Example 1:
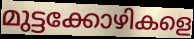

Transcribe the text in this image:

മുട്ടക്കോഴികളെ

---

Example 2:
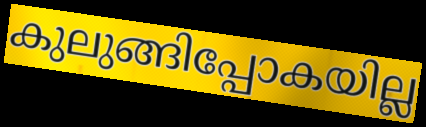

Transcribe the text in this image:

കുലുങ്ങിപ്പോകയില്ല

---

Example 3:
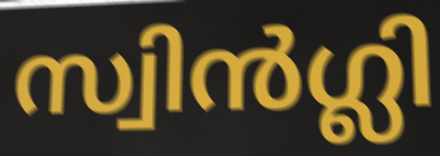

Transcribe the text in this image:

സ്വിൻഗ്ലി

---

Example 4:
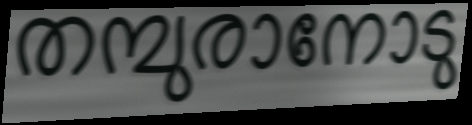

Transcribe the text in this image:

തമ്പുരാനോടു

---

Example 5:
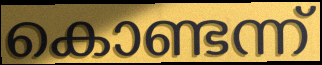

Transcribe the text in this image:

കൊണ്ടന്ന്